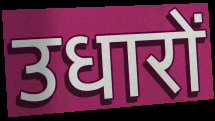
उधारों